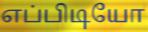
எப்பிடியோ